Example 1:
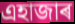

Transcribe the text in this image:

এহাজাৰ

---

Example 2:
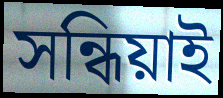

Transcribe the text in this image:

সন্ধিয়াই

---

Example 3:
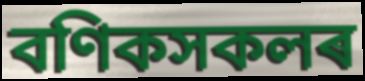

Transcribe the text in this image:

বণিকসকলৰ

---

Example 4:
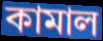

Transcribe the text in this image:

কামাল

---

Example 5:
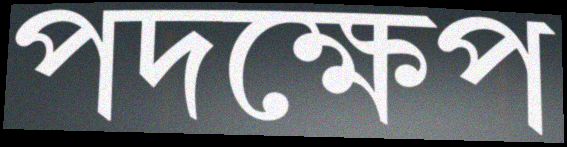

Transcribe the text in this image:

পদক্ষেপ